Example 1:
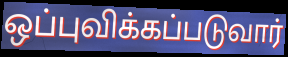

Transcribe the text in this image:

ஒப்புவிக்கப்படுவார்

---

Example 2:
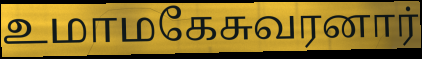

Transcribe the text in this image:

உமாமகேசுவரனார்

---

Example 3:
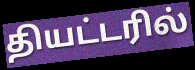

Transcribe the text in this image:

தியட்டரில்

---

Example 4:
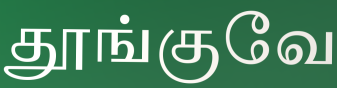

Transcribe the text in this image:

தூங்குவே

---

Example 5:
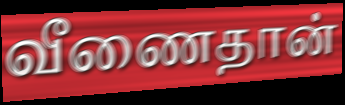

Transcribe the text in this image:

வீணைதான்